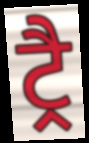
ट्रै